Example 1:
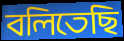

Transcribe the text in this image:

বলিতেছি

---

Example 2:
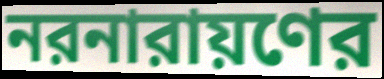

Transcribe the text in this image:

নরনারায়ণের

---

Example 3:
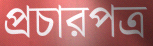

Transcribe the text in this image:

প্রচারপত্র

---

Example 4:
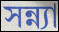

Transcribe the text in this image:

সন্ন্যা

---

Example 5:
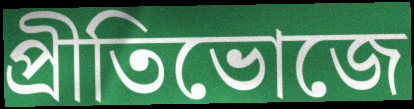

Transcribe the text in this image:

প্রীতিভোজে